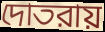
দোতরায়